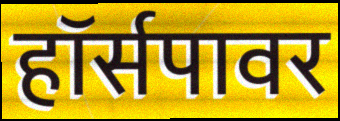
हॉर्सपावर